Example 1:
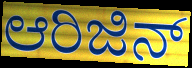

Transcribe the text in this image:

ಆರಿಜಿನ್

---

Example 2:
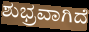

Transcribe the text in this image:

ಶುಭ್ರವಾಗಿದೆ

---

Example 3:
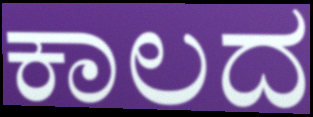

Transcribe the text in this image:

ಕಾಲದ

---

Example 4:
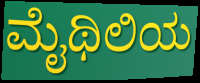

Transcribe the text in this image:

ಮೈಥಿಲಿಯ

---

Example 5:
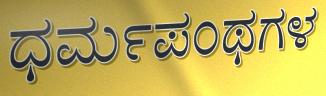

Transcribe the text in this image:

ಧರ್ಮಪಂಥಗಳ